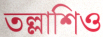
তল্লাশিও